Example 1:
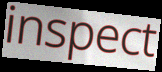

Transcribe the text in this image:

inspect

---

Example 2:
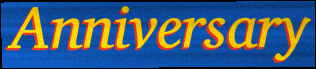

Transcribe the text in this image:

Anniversary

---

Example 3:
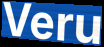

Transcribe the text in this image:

Veru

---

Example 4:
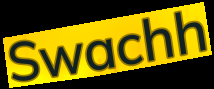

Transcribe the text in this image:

Swachh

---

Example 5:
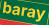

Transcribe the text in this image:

baray